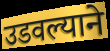
उडवल्याने